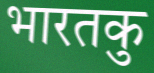
भारतकु